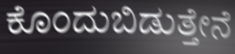
ಕೊಂದುಬಿಡುತ್ತೇನೆ